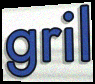
gril